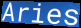
Aries